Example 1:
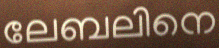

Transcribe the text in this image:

ലേബലിനെ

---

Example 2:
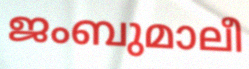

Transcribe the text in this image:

ജംബുമാലീ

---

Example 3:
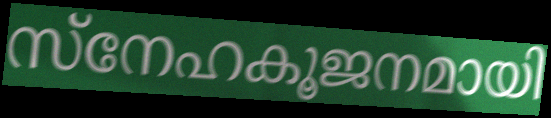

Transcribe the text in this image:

സ്നേഹകൂജനമായി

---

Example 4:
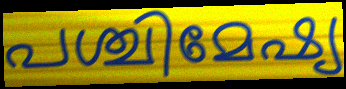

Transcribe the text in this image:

പശ്ചിമേഷ്യ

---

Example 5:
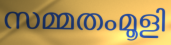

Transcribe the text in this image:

സമ്മതംമൂളി